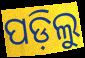
ପଡ଼ିଲୁ